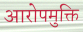
आरोपमुक्ति